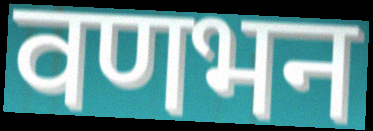
वणभन